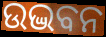
ଉଦ୍ଭବନ